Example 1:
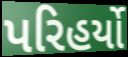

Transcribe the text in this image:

પરિહર્યો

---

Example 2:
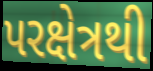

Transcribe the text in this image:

પરક્ષેત્રથી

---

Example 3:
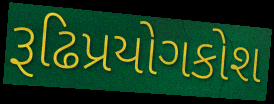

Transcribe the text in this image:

રૂઢિપ્રયોગકોશ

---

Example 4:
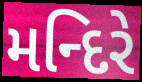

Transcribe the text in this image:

મન્દિરે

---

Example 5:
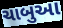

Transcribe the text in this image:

ચાબુઆ